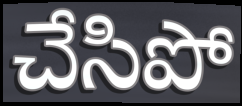
చేసిపో